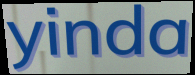
yinda